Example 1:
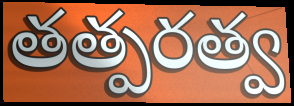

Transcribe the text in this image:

తత్పరత్వ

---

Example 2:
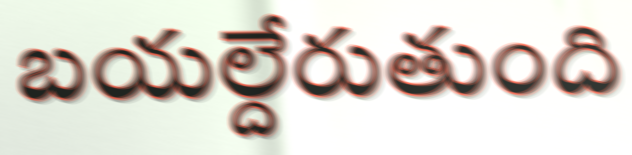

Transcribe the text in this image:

బయల్దేరుతుంది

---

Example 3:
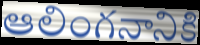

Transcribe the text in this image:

ఆలింగనానికి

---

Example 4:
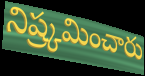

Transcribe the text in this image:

నిష్ర్కమించారు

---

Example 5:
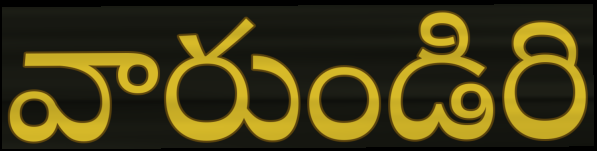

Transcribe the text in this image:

వారుండిరి